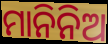
ମାନିନିଅ